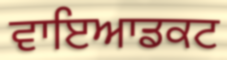
ਵਾਇਆਡਕਟ